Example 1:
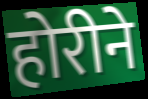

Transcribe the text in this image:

होरीने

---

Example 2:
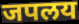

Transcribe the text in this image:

जपलय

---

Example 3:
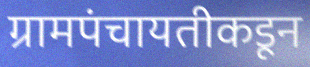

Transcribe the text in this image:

ग्रामपंचायतीकडून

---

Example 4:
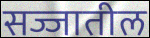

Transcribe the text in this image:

सज्जातील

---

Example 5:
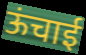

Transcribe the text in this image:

ऊंचाई